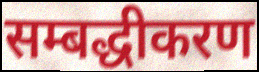
सम्बद्धीकरण